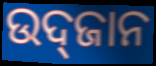
ଉଦ୍‌ଜାନ